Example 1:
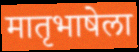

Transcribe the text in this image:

मातृभाषेला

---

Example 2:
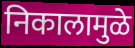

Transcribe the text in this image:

निकालामुळे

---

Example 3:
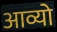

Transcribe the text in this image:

आव्यो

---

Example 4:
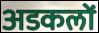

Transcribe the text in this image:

अडकलों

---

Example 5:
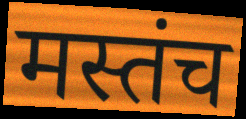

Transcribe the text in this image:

मस्तंच